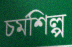
চর্মশিল্প